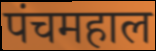
पंचमहाल